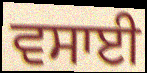
ਵਸਾਈ